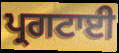
ਪ੍ਰਗਟਾਈ